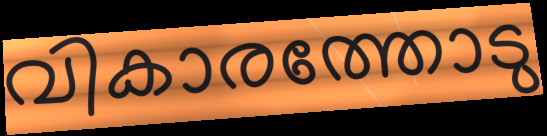
വികാരത്തോടു